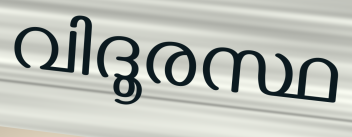
വിദൂരസ്ഥ